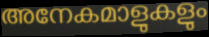
അനേകമാളുകളും